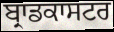
ਬ੍ਰਾਡਕਾਸਟਰ